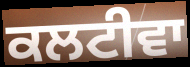
ਕਲਟੀਵਾ